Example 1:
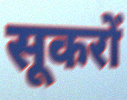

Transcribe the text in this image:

सूकरों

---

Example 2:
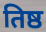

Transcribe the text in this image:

तिष्ठ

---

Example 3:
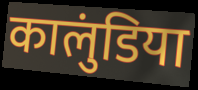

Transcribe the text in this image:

कालुंडिया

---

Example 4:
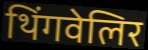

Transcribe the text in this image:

थिंगवेलिर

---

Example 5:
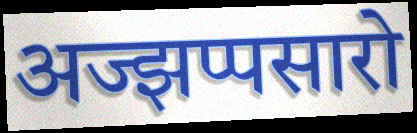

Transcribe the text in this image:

अज्झप्पसारो